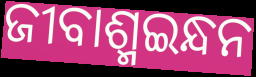
ଜୀବାଶ୍ମଇନ୍ଧନ